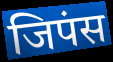
जिपंस